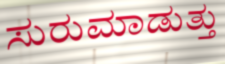
ಸುರುಮಾಡುತ್ತು